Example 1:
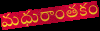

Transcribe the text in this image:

మధురాంతకం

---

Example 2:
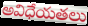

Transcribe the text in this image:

అవిధేయతలు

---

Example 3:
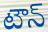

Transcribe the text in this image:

టౌన్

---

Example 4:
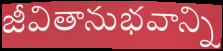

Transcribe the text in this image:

జీవితానుభవాన్ని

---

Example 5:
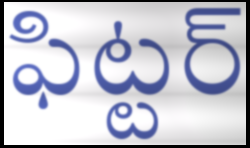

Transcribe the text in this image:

ఫిట్టర్